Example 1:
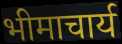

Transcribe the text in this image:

भीमाचार्य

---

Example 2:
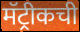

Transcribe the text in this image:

मॅट्रीकची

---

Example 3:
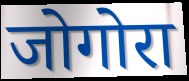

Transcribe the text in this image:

जोगोरा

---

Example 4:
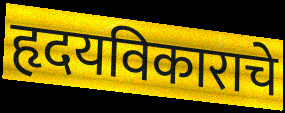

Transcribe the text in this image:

हृदयविकाराचे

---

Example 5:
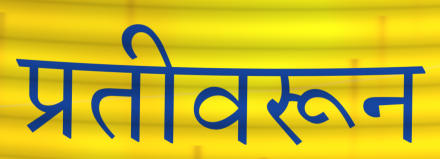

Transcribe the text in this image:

प्रतीवरून